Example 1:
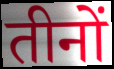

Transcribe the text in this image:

तीनों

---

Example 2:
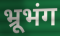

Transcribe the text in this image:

भ्रूभंग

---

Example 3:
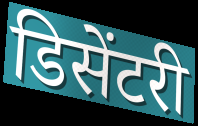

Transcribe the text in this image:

डिसेंटरी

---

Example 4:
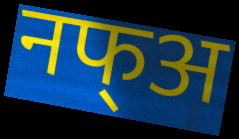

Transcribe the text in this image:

नफ्अ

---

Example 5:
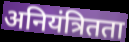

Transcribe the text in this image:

अनियंत्रितता